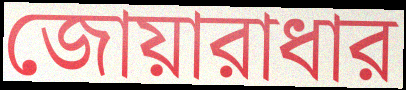
জোয়ারাধার